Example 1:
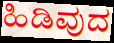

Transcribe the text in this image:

ಹಿಡಿವುದ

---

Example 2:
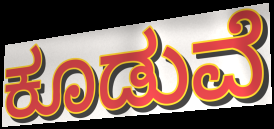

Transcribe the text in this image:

ಕೂಡುವೆ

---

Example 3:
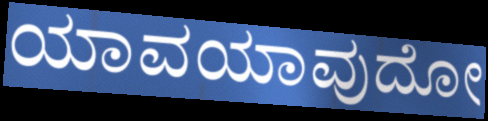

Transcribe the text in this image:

ಯಾವಯಾವುದೋ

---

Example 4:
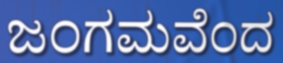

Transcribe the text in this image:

ಜಂಗಮವೆಂದ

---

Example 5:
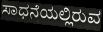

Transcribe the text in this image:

ಸಾಧನೆಯಲ್ಲಿರುವ